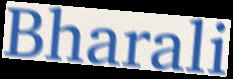
Bharali